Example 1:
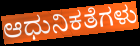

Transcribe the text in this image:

ಆಧುನಿಕತೆಗಳು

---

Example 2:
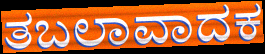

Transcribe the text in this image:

ತಬಲಾವಾದಕ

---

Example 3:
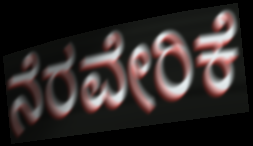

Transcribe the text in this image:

ನೆರವೇರಿಕೆ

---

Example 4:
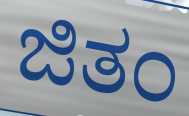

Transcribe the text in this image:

ಜಿತಂ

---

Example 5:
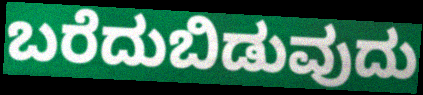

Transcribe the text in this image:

ಬರೆದುಬಿಡುವುದು